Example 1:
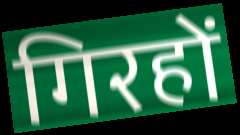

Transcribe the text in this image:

गिरहों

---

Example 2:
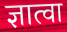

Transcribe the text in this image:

ज्ञात्वा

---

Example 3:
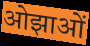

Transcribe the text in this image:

ओझाओं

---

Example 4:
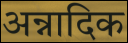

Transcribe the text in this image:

अन्नादिक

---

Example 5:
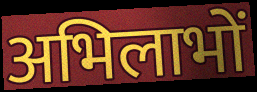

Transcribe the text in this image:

अभिलाभों